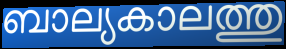
ബാല്യകാലത്തു